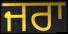
ਜਰਾ